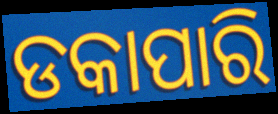
ଡକାପାରି